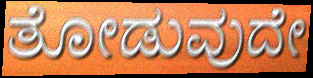
ತೋಡುವುದೇ